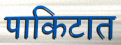
पाकिटात